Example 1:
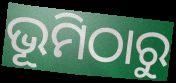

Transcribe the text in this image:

ଭୂମିଠାରୁ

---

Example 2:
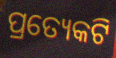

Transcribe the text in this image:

ପ୍ରତ୍ୟେକଟି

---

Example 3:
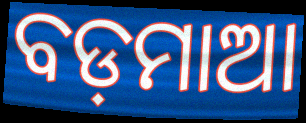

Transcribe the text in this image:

ବଡ଼ମାଆ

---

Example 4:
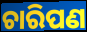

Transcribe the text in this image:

ଚାରିପଣ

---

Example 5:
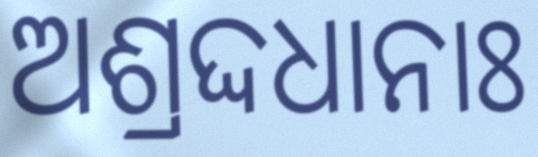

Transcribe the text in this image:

ଅଶ୍ରଦ୍ଦଧାନାଃ